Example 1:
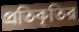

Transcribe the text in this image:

প্রতিকৃতির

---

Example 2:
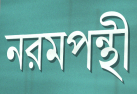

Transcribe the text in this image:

নরমপন্থী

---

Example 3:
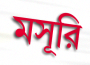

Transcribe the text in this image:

মসূরি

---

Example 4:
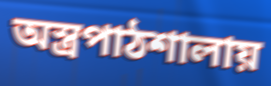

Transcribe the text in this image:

অস্ত্রপাঠশালায়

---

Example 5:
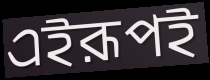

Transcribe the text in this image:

এইরূপই